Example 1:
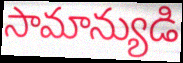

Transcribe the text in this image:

సామాన్యుడి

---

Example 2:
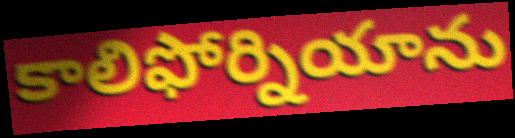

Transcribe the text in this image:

కాలిఫోర్నియాను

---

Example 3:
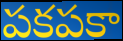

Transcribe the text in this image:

పకపకా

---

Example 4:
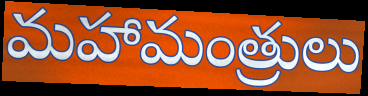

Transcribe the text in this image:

మహామంత్రులు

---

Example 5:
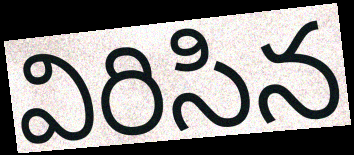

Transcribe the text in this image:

విరిసిన